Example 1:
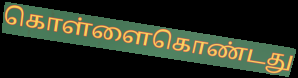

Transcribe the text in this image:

கொள்ளைகொண்டது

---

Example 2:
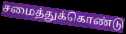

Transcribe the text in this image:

சமைத்துக்கொண்டு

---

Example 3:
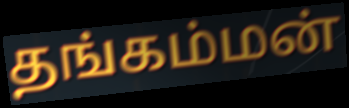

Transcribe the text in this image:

தங்கம்மன்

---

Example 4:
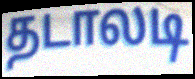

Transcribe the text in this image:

தடாலடி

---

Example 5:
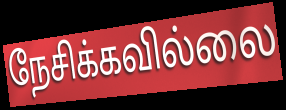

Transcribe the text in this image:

நேசிக்கவில்லை